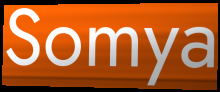
Somya